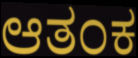
ಆತಂಕ